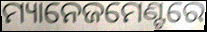
ମ୍ୟାନେଜମେଣ୍ଟରେ